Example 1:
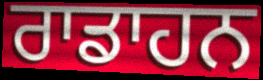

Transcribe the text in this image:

ਰਾਡਾਹਨ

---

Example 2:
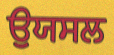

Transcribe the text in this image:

ਉਯਸਲ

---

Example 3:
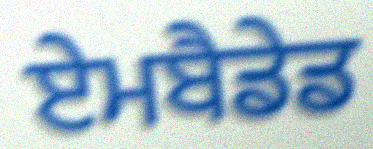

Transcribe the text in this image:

ਏਮਬੈਡੇਡ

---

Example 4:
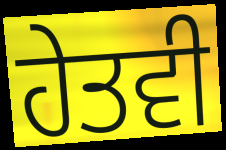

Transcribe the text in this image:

ਹੇਤਵੀ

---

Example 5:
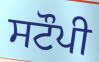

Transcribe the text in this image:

ਸਟੌਪੀ